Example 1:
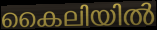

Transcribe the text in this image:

കൈലിയിൽ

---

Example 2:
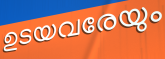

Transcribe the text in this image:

ഉടയവരേയും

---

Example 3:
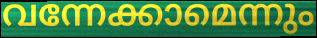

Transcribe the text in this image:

വന്നേക്കാമെന്നും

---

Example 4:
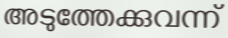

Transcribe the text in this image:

അടുത്തേക്കുവന്ന്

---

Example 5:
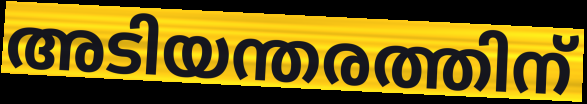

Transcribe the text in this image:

അടിയന്തരത്തിന്